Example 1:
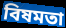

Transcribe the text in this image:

বিষমতা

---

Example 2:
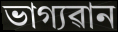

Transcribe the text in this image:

ভাগ্যৱান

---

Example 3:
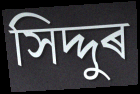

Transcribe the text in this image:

সিদ্দুৰ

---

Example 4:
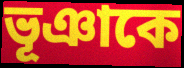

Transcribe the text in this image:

ভূঞাকে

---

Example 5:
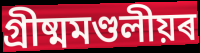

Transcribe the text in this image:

গ্ৰীষ্মমণ্ডলীয়ৰ